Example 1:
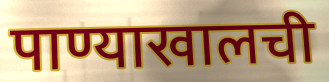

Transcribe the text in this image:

पाण्याखालची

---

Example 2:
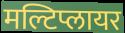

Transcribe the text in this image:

मल्टिप्लायर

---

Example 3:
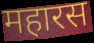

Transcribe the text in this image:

महारस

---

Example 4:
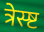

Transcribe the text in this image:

त्रेस्ष्ट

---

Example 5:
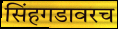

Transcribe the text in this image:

सिंहगडावरच